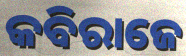
କବିରାଜେ